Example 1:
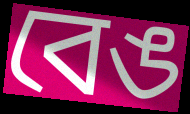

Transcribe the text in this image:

বেঙ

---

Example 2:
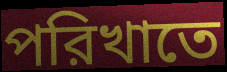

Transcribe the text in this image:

পরিখাতে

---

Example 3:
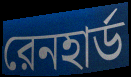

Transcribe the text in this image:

রেনহার্ড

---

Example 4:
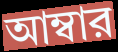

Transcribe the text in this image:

আম্বার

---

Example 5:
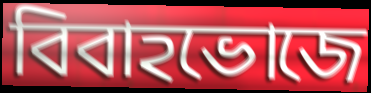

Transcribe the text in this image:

বিবাহভোজে